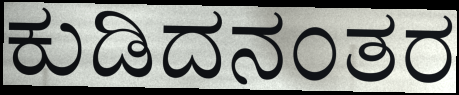
ಕುಡಿದನಂತರ